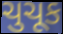
ચુચૂક